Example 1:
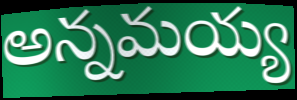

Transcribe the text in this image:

అన్నమయ్య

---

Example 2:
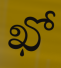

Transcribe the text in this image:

ఖో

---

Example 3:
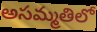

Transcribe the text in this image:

అసమ్మతిలో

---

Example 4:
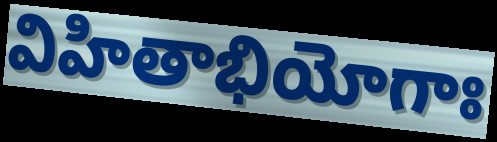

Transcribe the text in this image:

విహితాభియోగాః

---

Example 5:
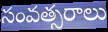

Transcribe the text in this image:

సంవత్సరాలు